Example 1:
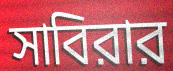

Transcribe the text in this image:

সাবিরার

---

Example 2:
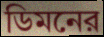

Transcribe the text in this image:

ডিমনের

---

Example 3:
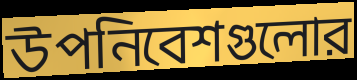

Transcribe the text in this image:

উপনিবেশগুলোর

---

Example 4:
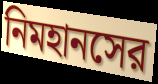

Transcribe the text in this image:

নিমহানসের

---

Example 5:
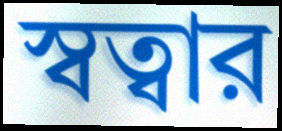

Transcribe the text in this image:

স্বত্বার